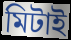
মিটাই